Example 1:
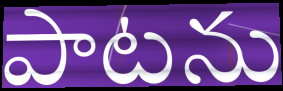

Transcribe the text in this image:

పాటను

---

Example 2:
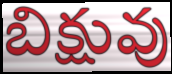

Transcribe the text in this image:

బిక్షువు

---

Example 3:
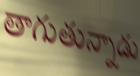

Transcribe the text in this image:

తాగుతున్నాడు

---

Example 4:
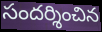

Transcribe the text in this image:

సందర్శించిన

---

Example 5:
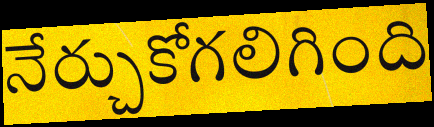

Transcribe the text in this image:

నేర్చుకోగలిగింది